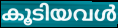
കൂടിയവൾ